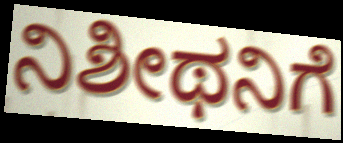
ನಿಶೀಥನಿಗೆ